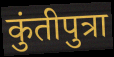
कुंतीपुत्रा